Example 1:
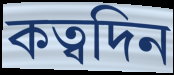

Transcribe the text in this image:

কত্বদিন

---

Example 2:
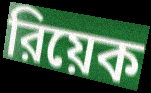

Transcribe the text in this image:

রিয়েক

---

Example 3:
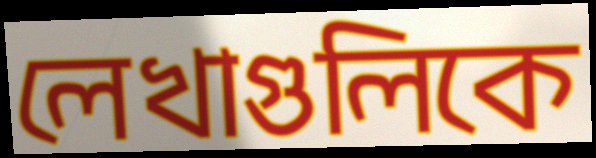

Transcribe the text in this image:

লেখাগুলিকে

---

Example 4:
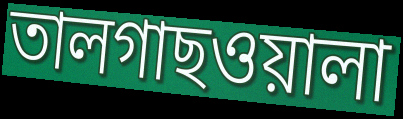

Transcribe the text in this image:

তালগাছওয়ালা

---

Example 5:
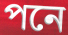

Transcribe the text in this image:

পনে